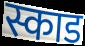
स्काड